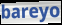
bareyo